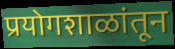
प्रयोगशाळांतून